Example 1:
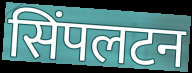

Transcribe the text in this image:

सिंपलटन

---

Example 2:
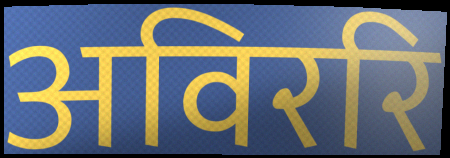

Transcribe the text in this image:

अविररि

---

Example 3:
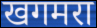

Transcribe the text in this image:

खगमरा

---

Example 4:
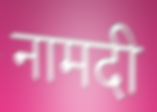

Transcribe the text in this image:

नामदी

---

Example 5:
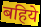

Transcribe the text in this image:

बहिये